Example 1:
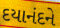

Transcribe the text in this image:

દયાનંદને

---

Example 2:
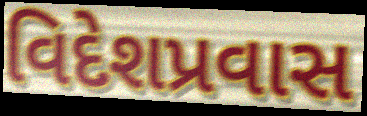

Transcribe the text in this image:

વિદેશપ્રવાસ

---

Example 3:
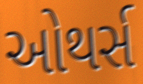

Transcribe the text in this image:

ઓથર્સ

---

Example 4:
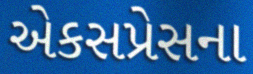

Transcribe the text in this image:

એકસપ્રેસના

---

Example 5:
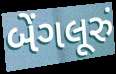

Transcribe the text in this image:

બેંગલૂરું